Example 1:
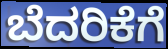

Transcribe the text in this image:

ಬೆದರಿಕೆಗೆ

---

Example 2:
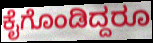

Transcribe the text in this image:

ಕೈಗೊಂಡಿದ್ದರೂ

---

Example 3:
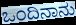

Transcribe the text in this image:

ಒಂದಿನಾನು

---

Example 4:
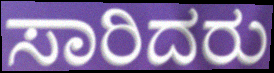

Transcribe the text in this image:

ಸಾರಿದರು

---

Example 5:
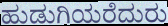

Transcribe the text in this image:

ಹುಡುಗಿಯರೆದುರು